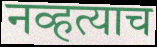
नव्हत्याच